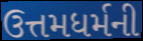
ઉત્તમધર્મની